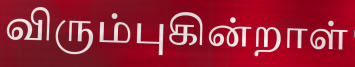
விரும்புகின்றாள்